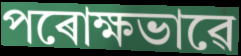
পৰোক্ষভাৱে